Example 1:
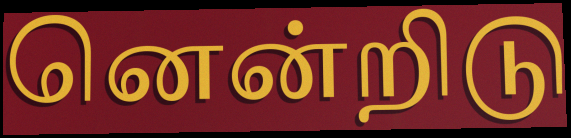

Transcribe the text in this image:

னென்றிடு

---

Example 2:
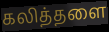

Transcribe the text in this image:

கலித்தளை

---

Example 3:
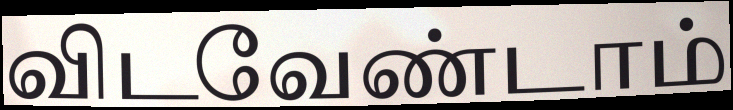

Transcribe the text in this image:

விடவேண்டாம்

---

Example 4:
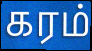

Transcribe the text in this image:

கரம்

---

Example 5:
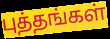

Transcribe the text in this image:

புத்தங்கள்